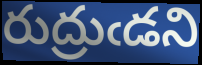
రుద్రుఁడని